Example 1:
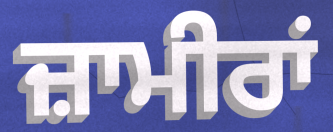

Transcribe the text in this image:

ਜ਼ਾਮੀਰਾਂ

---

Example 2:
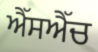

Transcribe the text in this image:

ਐੱਸਐੱਚ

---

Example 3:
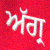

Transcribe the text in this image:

ਅੱਗ੍ਰ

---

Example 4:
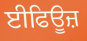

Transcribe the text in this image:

ਈਫਿਊਜ਼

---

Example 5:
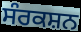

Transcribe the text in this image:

ਸੰਰਕਸ਼ਨ